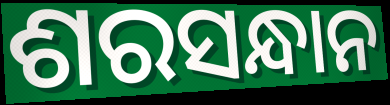
ଶରସନ୍ଧାନ